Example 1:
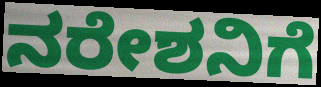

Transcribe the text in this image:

ನರೇಶನಿಗೆ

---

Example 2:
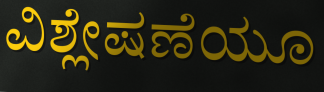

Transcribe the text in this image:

ವಿಶ್ಲೇಷಣೆಯೂ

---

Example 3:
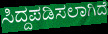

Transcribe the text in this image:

ಸಿದ್ದಪಡಿಸಲಾಗಿದೆ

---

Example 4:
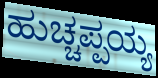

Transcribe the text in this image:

ಹುಚ್ಚಪ್ಪಯ್ಯ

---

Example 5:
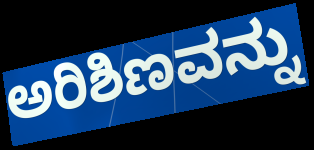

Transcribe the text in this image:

ಅರಿಶಿಣವನ್ನು